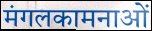
मंगलकामनाओं